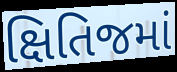
ક્ષિતિજમાં